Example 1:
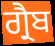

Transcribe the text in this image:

ਗ੍ਰੈਬ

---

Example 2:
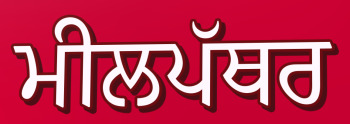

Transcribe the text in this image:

ਮੀਲਪੱਥਰ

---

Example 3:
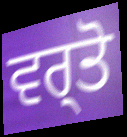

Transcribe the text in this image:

ਵਰ੍ਤੋ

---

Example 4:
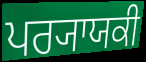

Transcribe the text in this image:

ਪਰ੍ਯਾਯਕੀ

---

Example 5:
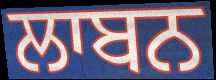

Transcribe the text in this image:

ਲਾਬਨ